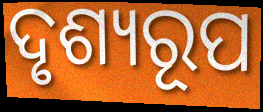
ଦୃଶ୍ୟରୂପ